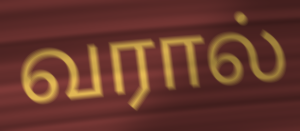
வரால்